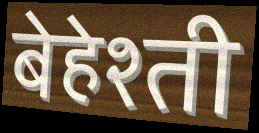
बेहेश्ती